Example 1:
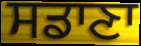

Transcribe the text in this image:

ਸਡਾਣਾ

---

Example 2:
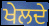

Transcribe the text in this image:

ਖੇਲਦੇ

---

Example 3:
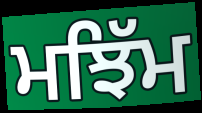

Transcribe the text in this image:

ਮਝਿੱਮ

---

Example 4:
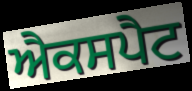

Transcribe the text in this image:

ਐਕਸਪੈਟ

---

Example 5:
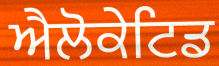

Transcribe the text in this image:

ਐਲੋਕੇਟਿਡ